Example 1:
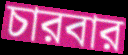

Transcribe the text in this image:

চারবার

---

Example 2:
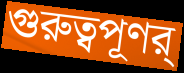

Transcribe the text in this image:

গুরুত্বপূণর্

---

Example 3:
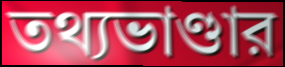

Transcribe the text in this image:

তথ্যভাণ্ডার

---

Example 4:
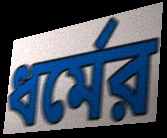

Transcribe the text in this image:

ধর্মের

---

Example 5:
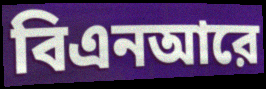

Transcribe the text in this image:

বিএনআরে